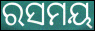
ରସମୟ